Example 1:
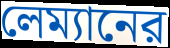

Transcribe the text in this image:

লেম্যানের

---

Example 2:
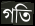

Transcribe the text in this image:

গতি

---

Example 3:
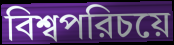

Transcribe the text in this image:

বিশ্বপরিচয়ে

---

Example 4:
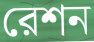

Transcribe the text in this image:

রেশন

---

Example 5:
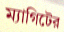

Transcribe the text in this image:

ম্যাগিটের